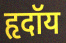
हृदॉय